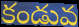
కండువ